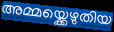
അമ്മയ്ക്കെഴുതിയ